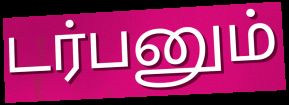
டர்பனும்